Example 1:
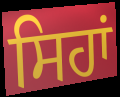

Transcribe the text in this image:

ਸਿਹਾਂ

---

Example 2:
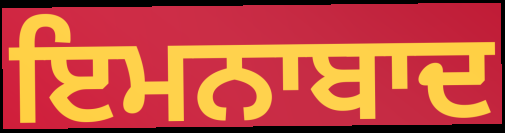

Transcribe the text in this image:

ਇਮਨਾਬਾਦ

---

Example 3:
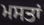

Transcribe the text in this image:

ਮਸਤਾਂ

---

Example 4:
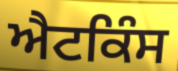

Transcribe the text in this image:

ਐਟਕਿੰਸ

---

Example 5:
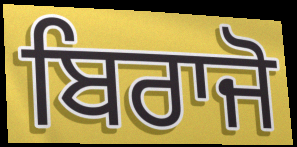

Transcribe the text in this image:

ਬਿਰਾਜੋ